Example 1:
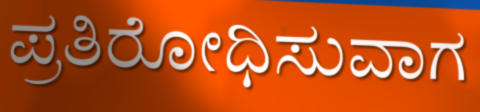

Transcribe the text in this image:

ಪ್ರತಿರೋಧಿಸುವಾಗ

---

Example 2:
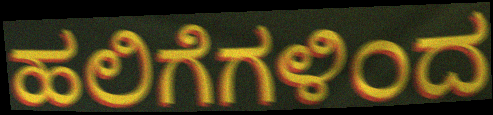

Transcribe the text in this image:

ಹಲಿಗೆಗಳಿಂದ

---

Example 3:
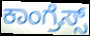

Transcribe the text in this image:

ಕಾಂಗ್ರೆಸ್ಸ್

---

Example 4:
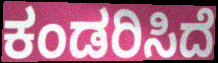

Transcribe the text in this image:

ಕಂಡರಿಸಿದೆ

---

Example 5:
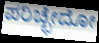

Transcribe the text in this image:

ಪರಿಚ್ಛೇದೋ